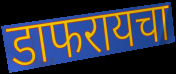
डाफरायचा